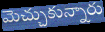
మెచ్చుకున్నారు